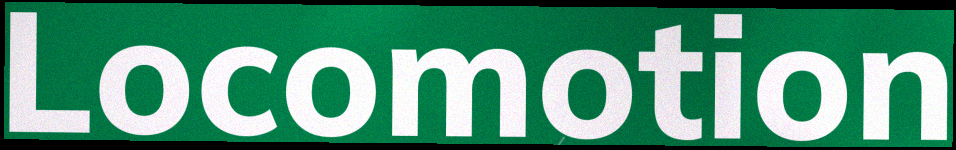
Locomotion